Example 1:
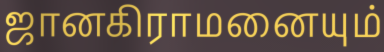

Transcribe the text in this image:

ஜானகிராமனையும்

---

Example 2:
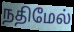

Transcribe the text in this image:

நதிமேல்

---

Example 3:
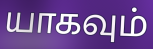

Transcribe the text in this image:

யாகவும்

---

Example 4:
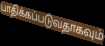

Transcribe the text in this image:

பாதிக்கப்படுவதாகவும்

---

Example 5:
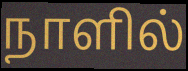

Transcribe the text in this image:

நாளில்